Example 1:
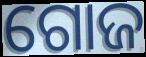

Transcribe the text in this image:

ଗୋଜ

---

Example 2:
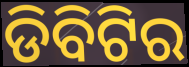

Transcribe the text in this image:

ଡିବିଟିର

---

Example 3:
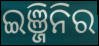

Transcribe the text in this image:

ଇଞ୍ଜିନିର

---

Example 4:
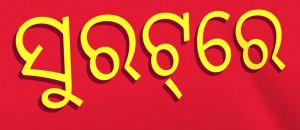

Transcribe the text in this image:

ସୁରଟ୍‌ରେ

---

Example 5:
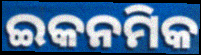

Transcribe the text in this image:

ଇକନମିକ